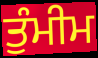
ਤੁੰਮੀਮ